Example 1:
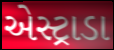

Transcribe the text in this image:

એસ્ટ્રાડા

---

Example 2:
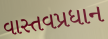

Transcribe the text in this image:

વાસ્તવપ્રધાન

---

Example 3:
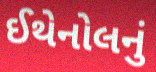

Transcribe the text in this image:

ઈથેનોલનું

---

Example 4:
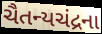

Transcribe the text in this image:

ચૈતન્યચંદ્રના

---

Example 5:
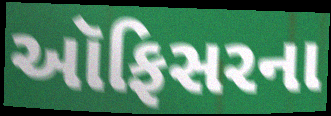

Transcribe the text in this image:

ઑફિસરના